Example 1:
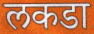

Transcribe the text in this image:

लकडा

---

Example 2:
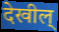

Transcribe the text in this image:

देखील्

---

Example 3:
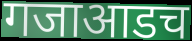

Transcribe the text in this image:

गजाआडच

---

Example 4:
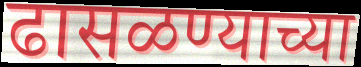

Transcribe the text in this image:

ढासळण्याच्या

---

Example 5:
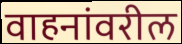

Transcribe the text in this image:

वाहनांवरील